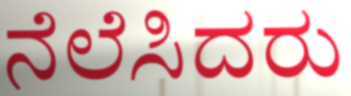
ನೆಲೆಸಿದರು